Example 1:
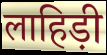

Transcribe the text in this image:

लाहिड़ी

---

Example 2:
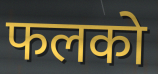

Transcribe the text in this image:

फलको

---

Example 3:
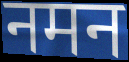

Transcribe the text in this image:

नमन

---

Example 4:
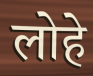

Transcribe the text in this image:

लोहे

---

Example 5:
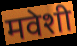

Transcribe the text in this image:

मवेशी